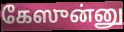
கேஸுன்னு